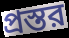
প্রস্তর